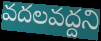
వదలవద్దని